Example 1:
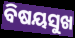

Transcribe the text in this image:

ବିଷୟସୁଖ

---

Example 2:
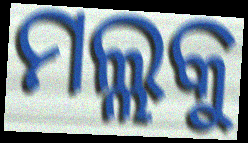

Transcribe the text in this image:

ମଲ୍ଲକୁ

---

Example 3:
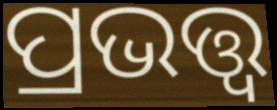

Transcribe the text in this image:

ପ୍ରଭତ୍ତ୍ଵ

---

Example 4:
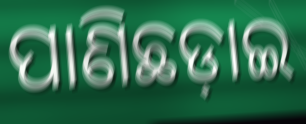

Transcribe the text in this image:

ପାଣିଛଡ଼ାଇ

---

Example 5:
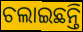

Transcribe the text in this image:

ଚଲାଇଛନ୍ତି